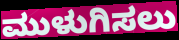
ಮುಳುಗಿಸಲು